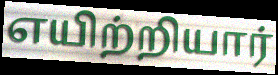
எயிற்றியார்